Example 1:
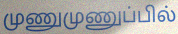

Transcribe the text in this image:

முணுமுணுப்பில்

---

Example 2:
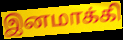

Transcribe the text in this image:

இனமாக்கி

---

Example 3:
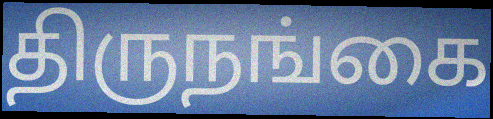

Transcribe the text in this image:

திருநங்கை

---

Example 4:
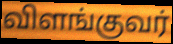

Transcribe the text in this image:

விளங்குவர்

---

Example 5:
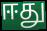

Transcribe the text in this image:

ஈது